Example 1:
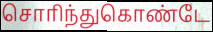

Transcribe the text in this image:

சொரிந்துகொண்டே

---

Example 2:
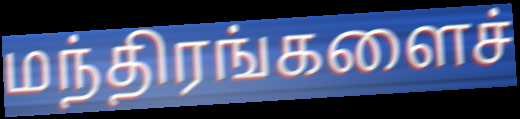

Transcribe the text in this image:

மந்திரங்களைச்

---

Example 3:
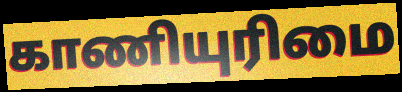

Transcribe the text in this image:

காணியுரிமை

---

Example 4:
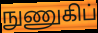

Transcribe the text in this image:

நுணுகிப்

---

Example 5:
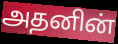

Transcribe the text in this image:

அதனின்